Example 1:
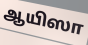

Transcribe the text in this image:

ஆயிஸா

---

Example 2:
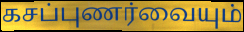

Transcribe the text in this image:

கசப்புணர்வையும்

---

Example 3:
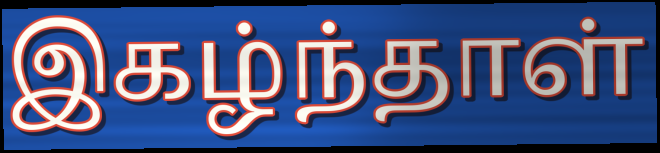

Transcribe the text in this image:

இகழ்ந்தாள்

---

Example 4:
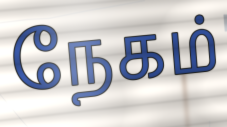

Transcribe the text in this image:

நேகம்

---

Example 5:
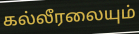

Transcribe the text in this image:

கல்லீரலையும்